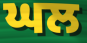
ਘਲ